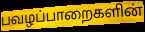
பவழப்பாறைகளின்